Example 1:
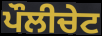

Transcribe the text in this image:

ਪੌਲੀਚੇਟ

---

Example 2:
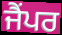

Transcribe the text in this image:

ਜੈਂਪਰ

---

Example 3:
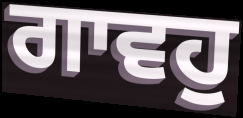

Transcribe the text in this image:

ਗਾਵਹੁ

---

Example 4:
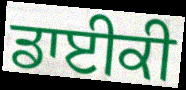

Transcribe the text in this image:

ਡਾਈਕੀ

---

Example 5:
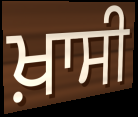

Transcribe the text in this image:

ਖ਼ਾਸੀ